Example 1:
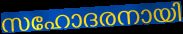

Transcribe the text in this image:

സഹോദരനായി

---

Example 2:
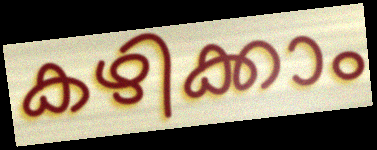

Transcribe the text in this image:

കഴിക്കാം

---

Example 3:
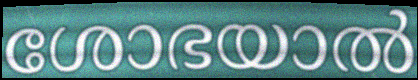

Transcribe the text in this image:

ശോഭയാൽ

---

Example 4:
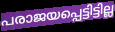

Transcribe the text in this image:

പരാജയപ്പെട്ടിട്ടില്ല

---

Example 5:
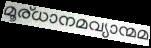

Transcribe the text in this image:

മൂര്ധാനമവ്യാന്മമ